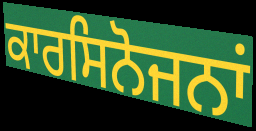
ਕਾਰਸਿਨੋਜਨਾਂ